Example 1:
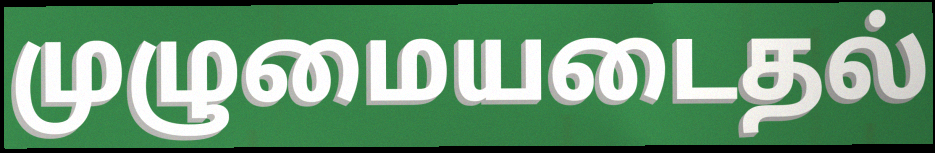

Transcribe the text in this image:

முழுமையடைதல்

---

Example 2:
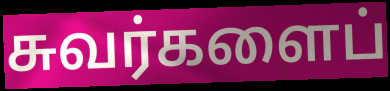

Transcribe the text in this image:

சுவர்களைப்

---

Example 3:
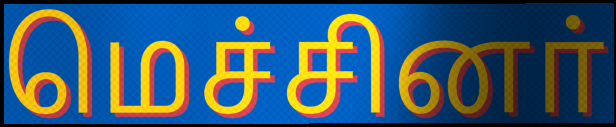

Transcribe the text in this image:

மெச்சினர்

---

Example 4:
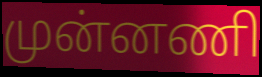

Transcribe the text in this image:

முன்னணி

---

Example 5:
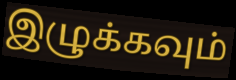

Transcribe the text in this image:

இழுக்கவும்